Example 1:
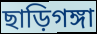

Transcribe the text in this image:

ছাড়িগঙ্গা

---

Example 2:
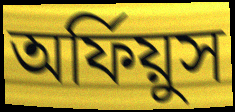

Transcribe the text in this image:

অর্ফিয়ুস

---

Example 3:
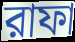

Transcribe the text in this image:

রাফা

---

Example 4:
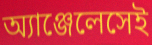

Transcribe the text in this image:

অ্যাঞ্জেলেসেই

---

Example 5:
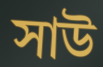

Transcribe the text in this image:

সাউ